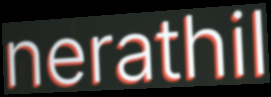
nerathil